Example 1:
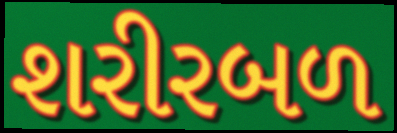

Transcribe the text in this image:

શરીરબળ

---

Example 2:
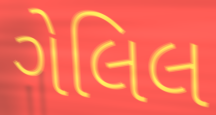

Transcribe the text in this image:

ગેલિલ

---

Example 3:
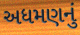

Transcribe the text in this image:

અધમણનું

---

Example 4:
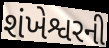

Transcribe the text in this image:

શંખેશ્વરની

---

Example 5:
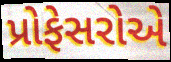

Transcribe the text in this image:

પ્રોફેસરોએ